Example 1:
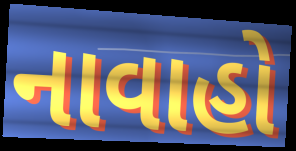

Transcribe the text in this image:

નાવાહો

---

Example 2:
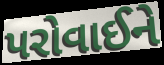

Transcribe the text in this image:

પરોવાઈને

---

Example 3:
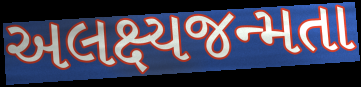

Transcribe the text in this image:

અલક્ષ્યજન્મતા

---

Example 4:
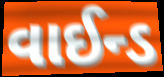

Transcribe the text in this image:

વાઈન્ડ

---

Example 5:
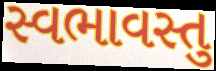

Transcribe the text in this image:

સ્વભાવસ્તુ